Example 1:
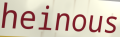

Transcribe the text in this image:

heinous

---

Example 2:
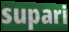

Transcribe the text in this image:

supari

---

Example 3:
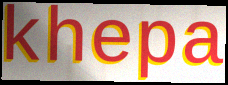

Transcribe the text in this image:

khepa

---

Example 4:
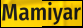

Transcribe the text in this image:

Mamiyar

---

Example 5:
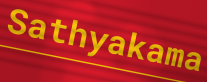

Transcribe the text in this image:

Sathyakama